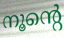
നൂന്റെ